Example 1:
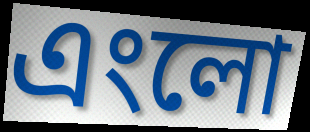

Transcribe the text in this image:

এংলো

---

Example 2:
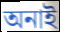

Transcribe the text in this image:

অনাই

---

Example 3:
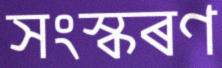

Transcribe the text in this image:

সংস্কৰণ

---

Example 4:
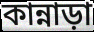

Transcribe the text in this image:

কান্নাড়া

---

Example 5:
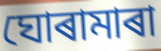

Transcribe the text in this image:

ঘোৰামাৰা